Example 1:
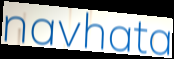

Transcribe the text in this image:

navhata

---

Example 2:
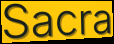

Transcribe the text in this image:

Sacra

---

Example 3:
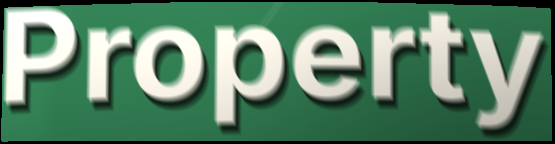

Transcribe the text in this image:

Property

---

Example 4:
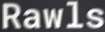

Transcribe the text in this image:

Rawls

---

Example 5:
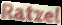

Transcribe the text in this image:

Ratzel